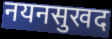
नयनसुखद